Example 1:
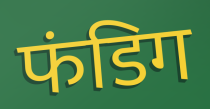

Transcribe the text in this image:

फंडिग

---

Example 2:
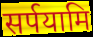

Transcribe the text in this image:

सर्पयामि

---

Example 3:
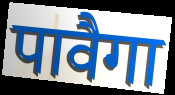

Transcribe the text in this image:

पावैगा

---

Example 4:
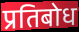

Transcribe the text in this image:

प्रतिबोध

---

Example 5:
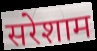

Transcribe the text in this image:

सरेशाम